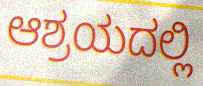
ಆಶ್ರಯದಲ್ಲಿ